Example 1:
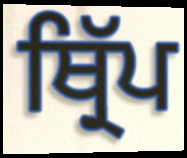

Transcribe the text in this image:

ਥ੍ਰਿੱਪ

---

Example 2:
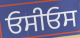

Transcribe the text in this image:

ਓਸੀਓਸ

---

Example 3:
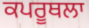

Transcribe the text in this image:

ਕਪਰੂਥਲਾ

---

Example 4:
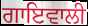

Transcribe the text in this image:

ਗਾਇਵਾਲੀ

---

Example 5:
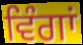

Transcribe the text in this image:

ਵਿੰਗਾਂ